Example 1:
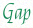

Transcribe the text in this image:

Gap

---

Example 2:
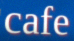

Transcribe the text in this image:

cafe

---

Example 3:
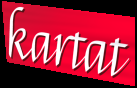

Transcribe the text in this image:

kartat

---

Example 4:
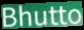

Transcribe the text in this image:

Bhutto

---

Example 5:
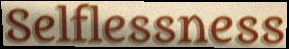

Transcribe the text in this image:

Selflessness